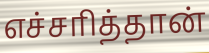
எச்சரித்தான்